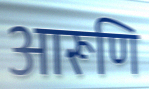
आरूणि